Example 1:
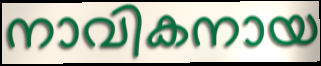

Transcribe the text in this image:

നാവികനായ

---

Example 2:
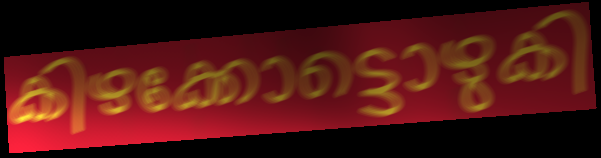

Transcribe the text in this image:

കിഴക്കോട്ടൊഴുകി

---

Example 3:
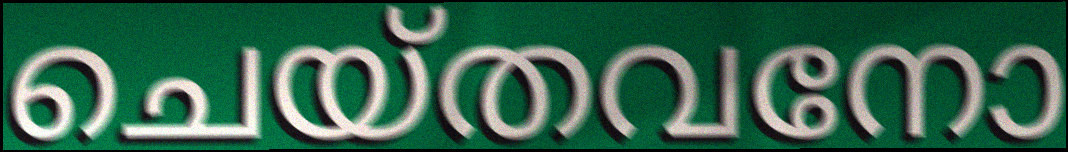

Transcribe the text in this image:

ചെയ്തവനോ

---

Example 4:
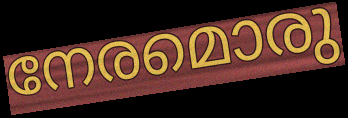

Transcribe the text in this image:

നേരമൊരു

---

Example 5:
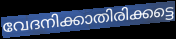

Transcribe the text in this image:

വേദനിക്കാതിരിക്കട്ടെ